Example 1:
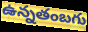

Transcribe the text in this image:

ఉన్నతంబగు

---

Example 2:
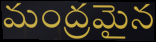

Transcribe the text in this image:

మంద్రమైన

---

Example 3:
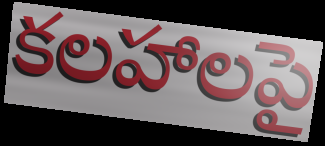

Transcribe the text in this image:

కలహాలపై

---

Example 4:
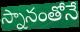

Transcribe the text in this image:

స్నానంతోనే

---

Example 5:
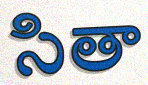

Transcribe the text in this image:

సితా